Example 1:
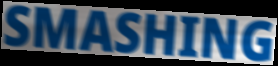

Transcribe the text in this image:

SMASHING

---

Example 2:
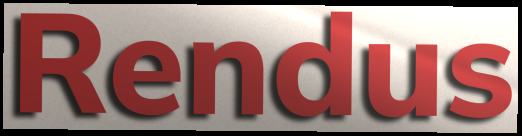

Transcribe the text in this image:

Rendus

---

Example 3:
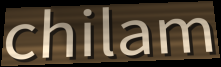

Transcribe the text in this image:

chilam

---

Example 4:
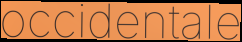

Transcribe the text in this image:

occidentale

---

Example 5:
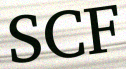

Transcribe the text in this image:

SCF